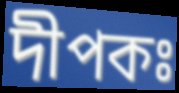
দীপকঃ